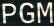
PGM